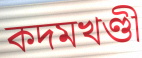
কদমখণ্ডী